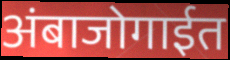
अंबाजोगाईत